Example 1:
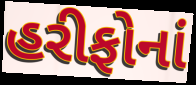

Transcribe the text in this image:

હરીફોનાં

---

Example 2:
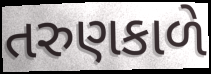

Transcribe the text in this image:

તરુણકાળે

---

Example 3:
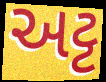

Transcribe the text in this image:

અટ્ટ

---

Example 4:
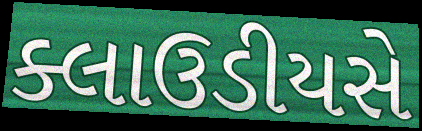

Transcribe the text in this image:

ક્લાઉડીયસે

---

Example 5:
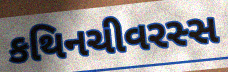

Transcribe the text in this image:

કથિનચીવરસ્સ